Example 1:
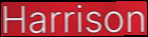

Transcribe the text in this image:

Harrison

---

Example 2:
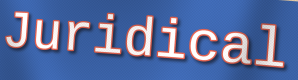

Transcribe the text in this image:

Juridical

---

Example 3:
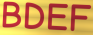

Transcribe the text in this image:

BDEF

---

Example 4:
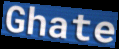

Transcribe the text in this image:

Ghate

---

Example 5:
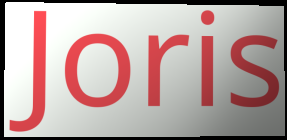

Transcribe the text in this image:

Joris